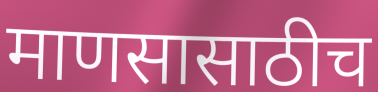
माणसासाठीच